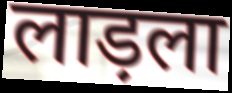
लाड़ला